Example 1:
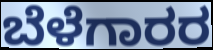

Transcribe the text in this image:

ಬೆಳೆಗಾರರ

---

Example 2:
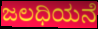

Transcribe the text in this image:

ಜಲಧಿಯನೆ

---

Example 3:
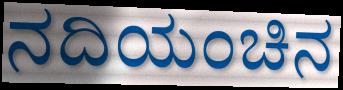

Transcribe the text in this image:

ನದಿಯಂಚಿನ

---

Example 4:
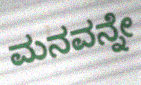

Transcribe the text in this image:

ಮನವನ್ನೇ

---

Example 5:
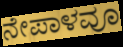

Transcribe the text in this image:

ನೇಪಾಳವೂ